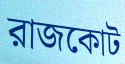
রাজকোট